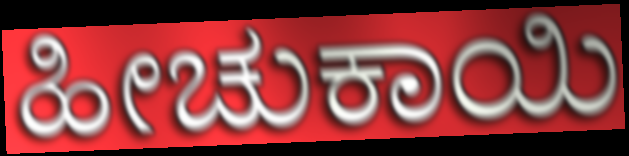
ಹೀಚುಕಾಯಿ